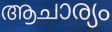
ആചാര്യം